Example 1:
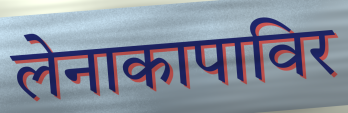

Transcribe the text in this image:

लेनाकापाविर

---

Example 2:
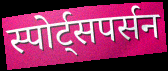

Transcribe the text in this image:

स्पोर्ट्सपर्सन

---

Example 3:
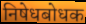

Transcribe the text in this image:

निषेधबोधक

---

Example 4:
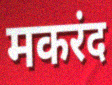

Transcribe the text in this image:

मकरंद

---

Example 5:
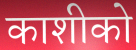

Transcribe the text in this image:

काशीको